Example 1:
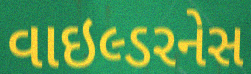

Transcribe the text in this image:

વાઇલ્ડરનેસ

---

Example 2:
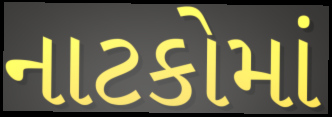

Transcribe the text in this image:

નાટકોમાં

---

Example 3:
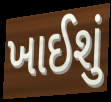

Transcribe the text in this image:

ખાઈશું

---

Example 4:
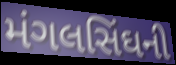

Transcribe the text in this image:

મંગલસિંઘની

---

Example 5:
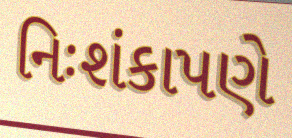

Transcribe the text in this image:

નિઃશંકાપણે